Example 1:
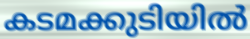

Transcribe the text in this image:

കടമക്കുടിയിൽ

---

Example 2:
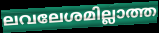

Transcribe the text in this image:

ലവലേശമില്ലാത്ത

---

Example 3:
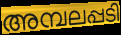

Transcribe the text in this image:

അമ്പലപ്പടി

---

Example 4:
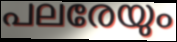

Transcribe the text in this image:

പലരേയും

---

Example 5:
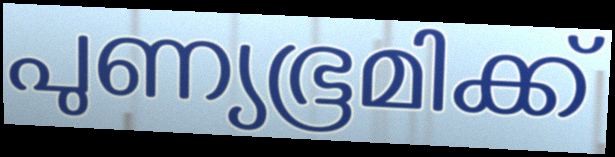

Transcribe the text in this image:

പുണ്യഭൂമിക്ക്